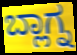
ಬ್ಲಾಗ್ನ